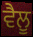
ਵੈਲੂ